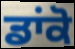
ਡਾਂਕੋ